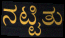
ನಟ್ಟಿತು